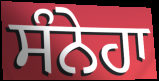
ਸੰਨੇਹਾ